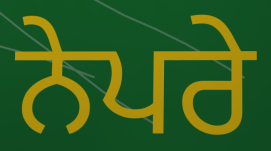
ਨੇਪਰੇ